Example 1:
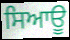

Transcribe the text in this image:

ਸਿਆਊ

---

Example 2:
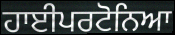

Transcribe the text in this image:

ਹਾਈਪਰਟੋਨਿਆ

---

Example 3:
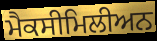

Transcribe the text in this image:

ਮੈਕਸੀਮਿਲੀਅਨ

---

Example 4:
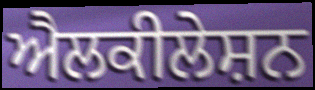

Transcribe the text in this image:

ਐਲਕੀਲੇਸ਼ਨ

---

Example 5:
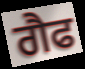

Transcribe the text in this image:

ਗੈਫ